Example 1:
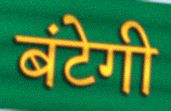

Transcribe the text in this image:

बंटेगी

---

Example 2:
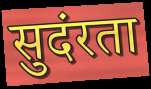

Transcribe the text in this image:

सुदंरता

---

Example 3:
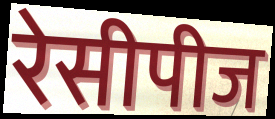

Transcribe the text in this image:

रेसीपीज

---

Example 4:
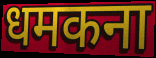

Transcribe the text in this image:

धमकना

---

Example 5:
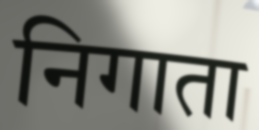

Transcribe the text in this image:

निगाता